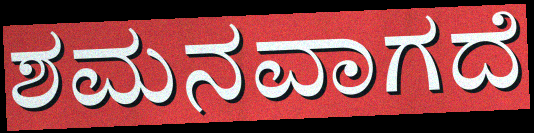
ಶಮನವಾಗದೆ